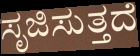
ಸೃಜಿಸುತ್ತದೆ